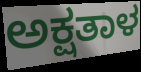
ಅಕ್ಷತಾಳ